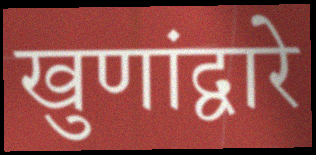
खुणांद्वारे